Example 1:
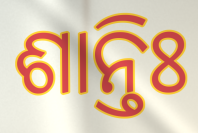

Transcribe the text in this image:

ଶାନ୍ତିଃ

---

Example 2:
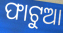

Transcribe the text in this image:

ଫାଟୁଆ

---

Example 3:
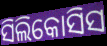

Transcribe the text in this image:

ସିଲିକୋସିସ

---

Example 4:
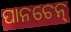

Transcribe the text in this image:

ପାନଚେନ୍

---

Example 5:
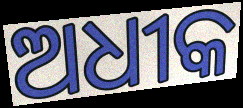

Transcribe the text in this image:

ଅଧୀକ